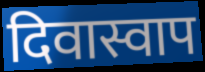
दिवास्वाप